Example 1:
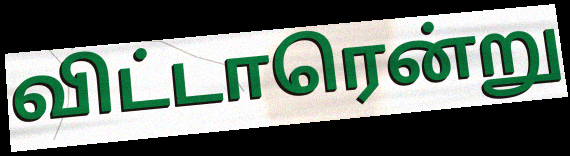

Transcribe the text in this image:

விட்டாரென்று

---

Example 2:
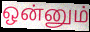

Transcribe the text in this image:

ஒன்னும்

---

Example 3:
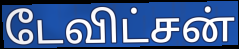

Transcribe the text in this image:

டேவிட்சன்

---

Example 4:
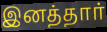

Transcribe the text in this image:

இனத்தார்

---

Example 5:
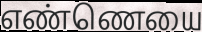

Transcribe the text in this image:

எண்ணெயை